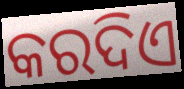
କରଦିଏ